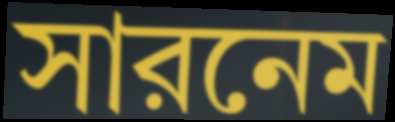
সারনেম